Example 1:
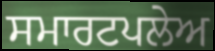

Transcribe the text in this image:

ਸਮਾਰਟਪਲੇਅ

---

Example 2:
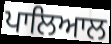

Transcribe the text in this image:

ਪਾਲਿਆਲ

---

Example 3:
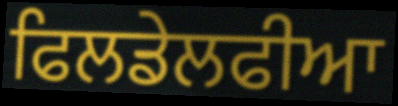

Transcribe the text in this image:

ਫਿਲਡੇਲਫੀਆ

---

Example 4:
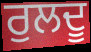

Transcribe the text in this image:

ਰੁਲਦੂ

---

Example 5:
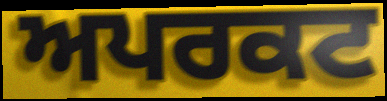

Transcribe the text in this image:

ਅਪਰਕਟ